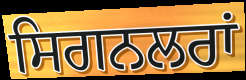
ਸਿਗਨਲਰਾਂ